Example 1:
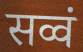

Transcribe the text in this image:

सव्वं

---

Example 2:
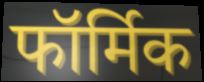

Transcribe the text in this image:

फॉर्मिक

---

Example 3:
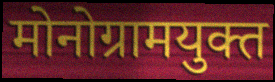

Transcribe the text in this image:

मोनोग्रामयुक्त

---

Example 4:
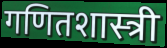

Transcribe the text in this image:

गणितशास्त्री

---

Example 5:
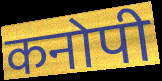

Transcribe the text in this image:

कनोपी